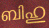
ബിഹു